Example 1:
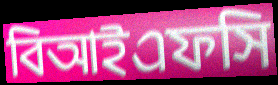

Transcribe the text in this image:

বিআইএফসি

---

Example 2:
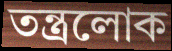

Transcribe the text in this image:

তন্ত্রলোক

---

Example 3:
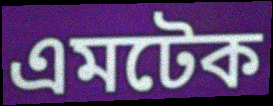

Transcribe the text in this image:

এমটেক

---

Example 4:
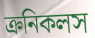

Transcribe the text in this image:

ক্রনিকলস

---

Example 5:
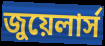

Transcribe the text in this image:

জুয়েলার্স